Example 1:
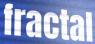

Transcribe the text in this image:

fractal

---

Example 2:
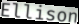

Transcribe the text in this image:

Ellison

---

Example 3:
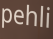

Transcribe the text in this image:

pehli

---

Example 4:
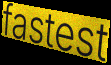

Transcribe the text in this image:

fastest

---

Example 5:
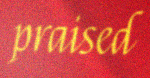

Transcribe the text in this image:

praised